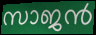
സാജൻ